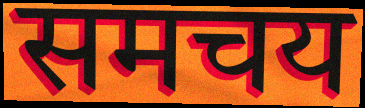
समचय